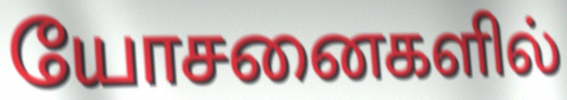
யோசனைகளில்